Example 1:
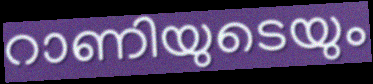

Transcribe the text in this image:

റാണിയുടെയും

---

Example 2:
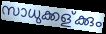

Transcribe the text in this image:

സാധുക്കള്ക്കും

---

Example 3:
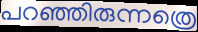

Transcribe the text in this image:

പറഞ്ഞിരുന്നത്രെ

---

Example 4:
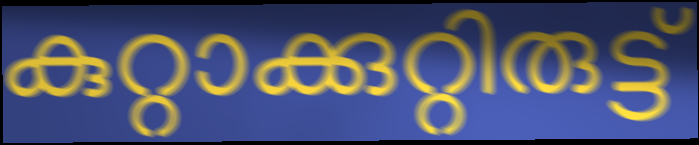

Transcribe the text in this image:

കുറ്റാക്കുറ്റിരുട്ട്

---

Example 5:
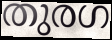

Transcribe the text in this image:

തുരഗ